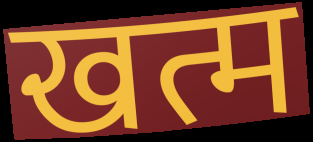
खत्‍म